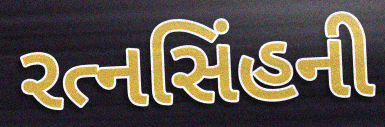
રત્નસિંહની